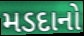
મડદાનો